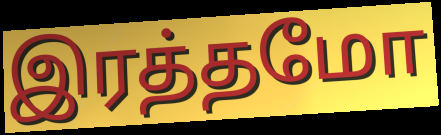
இரத்தமோ